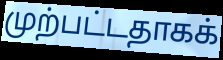
முற்பட்டதாகக்